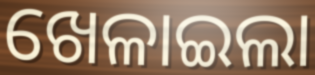
ଖେଳାଇଲା